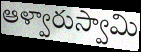
ఆళ్వారుస్వామి